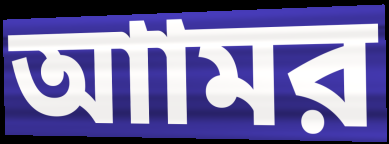
আামর